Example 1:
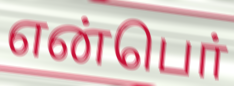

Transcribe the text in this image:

என்பெர்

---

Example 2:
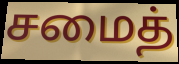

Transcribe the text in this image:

சமைத்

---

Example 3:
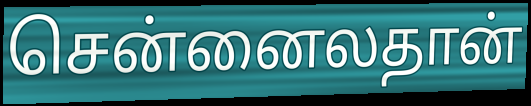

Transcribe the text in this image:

சென்னைலதான்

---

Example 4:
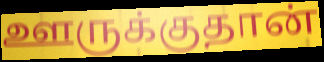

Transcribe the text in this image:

ஊருக்குதான்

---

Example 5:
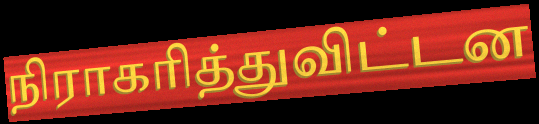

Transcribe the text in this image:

நிராகரித்துவிட்டன